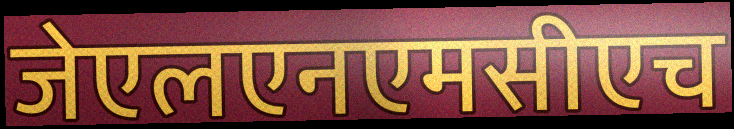
जेएलएनएमसीएच